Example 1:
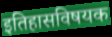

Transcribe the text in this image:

इतिहासविषयक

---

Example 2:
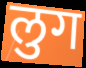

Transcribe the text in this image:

लुग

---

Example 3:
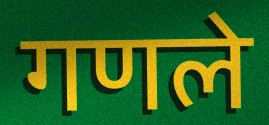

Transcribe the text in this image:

गणले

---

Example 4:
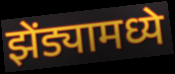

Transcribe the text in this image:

झेंड्यामध्ये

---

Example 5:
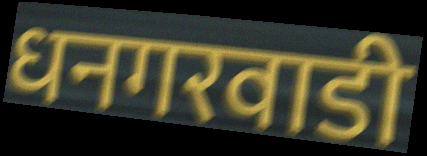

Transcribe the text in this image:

धनगरवाडी